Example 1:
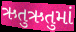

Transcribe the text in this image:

ઋતુઋતુમાં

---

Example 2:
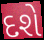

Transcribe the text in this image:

દશે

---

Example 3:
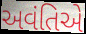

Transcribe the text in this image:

અવંતિએ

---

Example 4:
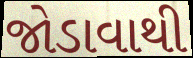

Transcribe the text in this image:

જોડાવાથી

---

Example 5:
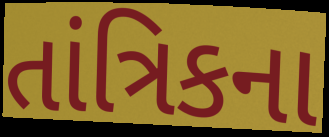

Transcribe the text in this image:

તાંત્રિકના